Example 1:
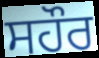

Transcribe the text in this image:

ਸਹੌਰ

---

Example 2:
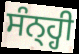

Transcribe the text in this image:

ਸੰਨ੍ਹ੍ਹੀ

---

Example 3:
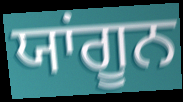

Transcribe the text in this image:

ਯਾਂਗੂਨ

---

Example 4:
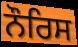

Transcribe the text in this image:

ਨੌਰਿਸ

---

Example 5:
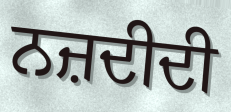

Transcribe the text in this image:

ਨਜ਼ਦੀਦੀ